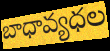
బాధావ్యధల